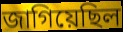
জাগিয়েছিল